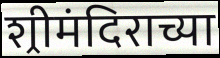
श्रीमंदिराच्या